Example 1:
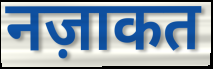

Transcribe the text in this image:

नज़ाकत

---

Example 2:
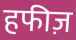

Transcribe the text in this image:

हफीज़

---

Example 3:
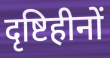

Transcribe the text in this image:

दृष्टिहीनों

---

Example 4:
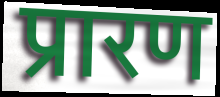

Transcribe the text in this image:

प्रारण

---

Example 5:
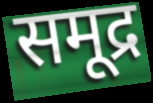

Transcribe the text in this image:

समूद्र